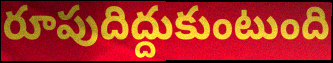
రూపుదిద్దుకుంటుంది